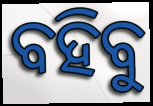
ବହିବୁ